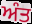
ਅੰਤ